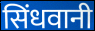
सिंधवानी